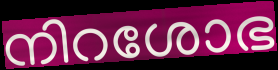
നിറശോഭ